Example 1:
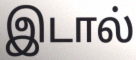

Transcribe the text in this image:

இடால்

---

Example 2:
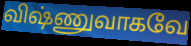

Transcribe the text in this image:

விஷ்ணுவாகவே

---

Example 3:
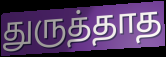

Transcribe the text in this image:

துருத்தாத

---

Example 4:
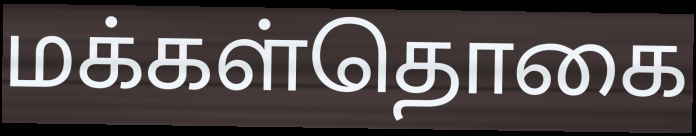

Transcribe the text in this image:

மக்கள்தொகை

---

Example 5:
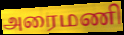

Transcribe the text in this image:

அரைமணி